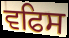
ਵਫਿਸ